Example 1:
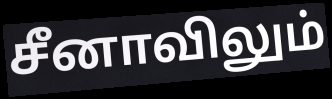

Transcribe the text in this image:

சீனாவிலும்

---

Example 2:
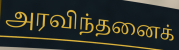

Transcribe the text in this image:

அரவிந்தனைக்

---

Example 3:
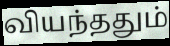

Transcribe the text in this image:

வியந்ததும்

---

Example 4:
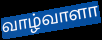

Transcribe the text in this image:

வாழ்வாளா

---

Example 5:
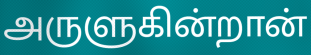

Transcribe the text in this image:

அருளுகின்றான்